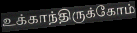
உக்காந்திருக்கோம்